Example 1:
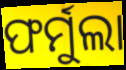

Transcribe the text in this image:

ଫର୍ମୁଲା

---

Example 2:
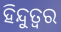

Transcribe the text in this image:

ହିନ୍ଦୁତ୍ବର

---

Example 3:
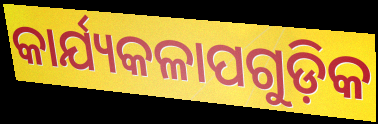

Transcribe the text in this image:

କାର୍ଯ୍ୟକଳାପଗୁଡ଼ିକ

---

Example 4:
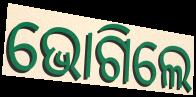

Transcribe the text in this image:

ଭୋଗିଲେ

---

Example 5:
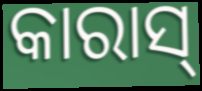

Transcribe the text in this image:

କାରାସ୍